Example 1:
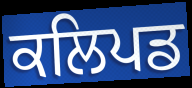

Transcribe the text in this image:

ਕਲਿਪਡ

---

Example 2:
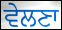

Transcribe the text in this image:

ਵੇਲਣਾ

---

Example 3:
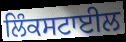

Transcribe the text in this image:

ਲਿੰਕਸਟਾਈਲ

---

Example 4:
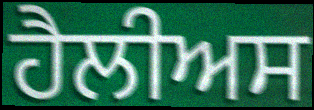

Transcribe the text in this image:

ਹੈਲੀਅਸ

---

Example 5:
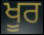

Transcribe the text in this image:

ਖੂਰ